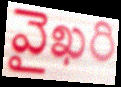
వైఖరి